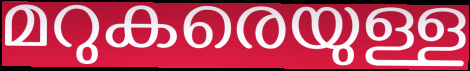
മറുകരെയുള്ള